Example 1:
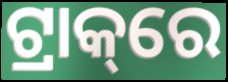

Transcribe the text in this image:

ଟ୍ରାକ୍‌ରେ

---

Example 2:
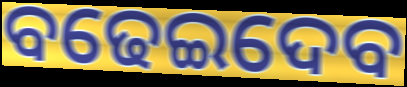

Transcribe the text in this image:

ବଢେଇଦେବ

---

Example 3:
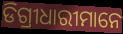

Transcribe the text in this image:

ଡିଗ୍ରୀଧାରୀମାନେ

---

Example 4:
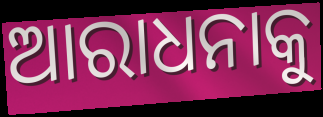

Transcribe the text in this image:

ଆରାଧନାକୁ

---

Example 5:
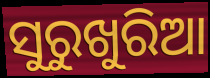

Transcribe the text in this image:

ସୁରୁଖୁରିଆ